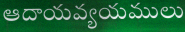
ఆదాయవ్యయములు